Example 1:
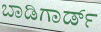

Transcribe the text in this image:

ಬಾಡಿಗಾರ್ಡ್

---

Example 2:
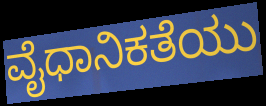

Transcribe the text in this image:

ವೈಧಾನಿಕತೆಯು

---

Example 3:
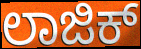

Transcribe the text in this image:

ಲಾಜಿಕ್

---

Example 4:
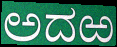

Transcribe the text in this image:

ಅದಱ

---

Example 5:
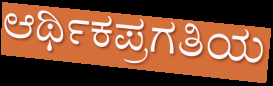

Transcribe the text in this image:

ಆರ್ಥಿಕಪ್ರಗತಿಯ